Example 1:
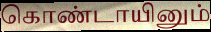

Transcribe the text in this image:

கொண்டாயினும்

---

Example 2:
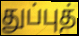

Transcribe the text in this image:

துப்புத்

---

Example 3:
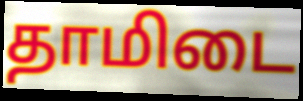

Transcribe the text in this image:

தாமிடை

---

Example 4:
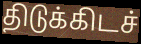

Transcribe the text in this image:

திடுக்கிடச்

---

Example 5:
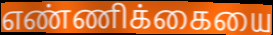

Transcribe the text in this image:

எண்ணிக்கையை